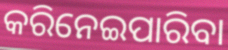
କରିନେଇପାରିବା